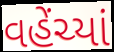
વહેંચ્યાં